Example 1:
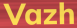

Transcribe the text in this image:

Vazh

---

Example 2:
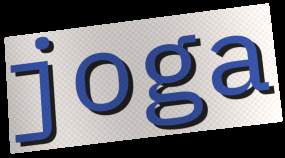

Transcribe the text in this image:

joga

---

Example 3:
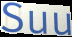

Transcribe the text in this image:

Suu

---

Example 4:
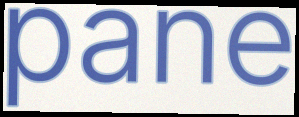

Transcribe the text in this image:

pane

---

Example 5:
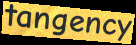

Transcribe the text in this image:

tangency